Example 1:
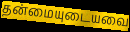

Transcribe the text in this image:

தன்மையுடையவை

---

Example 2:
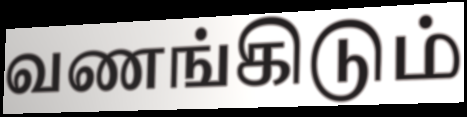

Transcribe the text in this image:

வணங்கிடும்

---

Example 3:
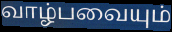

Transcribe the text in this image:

வாழ்பவையும்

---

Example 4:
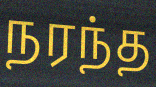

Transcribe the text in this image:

நரந்த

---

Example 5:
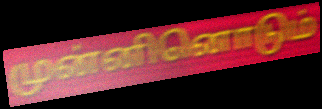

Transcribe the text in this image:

முன்னினொடும்